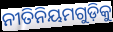
ନୀତିନିୟମଗୁଡ଼ିକୁ